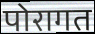
पोरागत